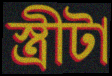
স্ত্রীটা